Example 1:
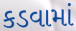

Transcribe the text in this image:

કડવામાં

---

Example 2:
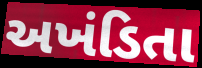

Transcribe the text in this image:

અખંડિતા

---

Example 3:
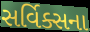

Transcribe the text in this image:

સર્વિક્સના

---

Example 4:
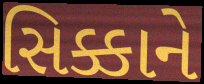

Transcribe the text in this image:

સિક્કાને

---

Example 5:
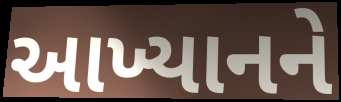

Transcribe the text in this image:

આખ્યાનને